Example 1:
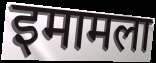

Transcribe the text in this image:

इमामला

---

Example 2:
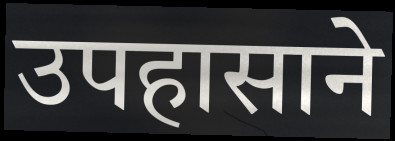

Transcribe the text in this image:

उपहासाने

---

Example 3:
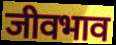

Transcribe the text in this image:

जीवभाव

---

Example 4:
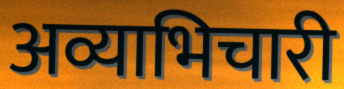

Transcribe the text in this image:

अव्याभिचारी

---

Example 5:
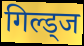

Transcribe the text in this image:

गिल्ड्ज